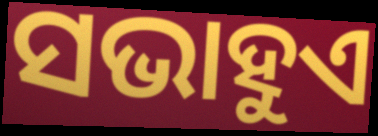
ସଭାହୁଏ